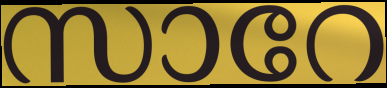
സാറേ